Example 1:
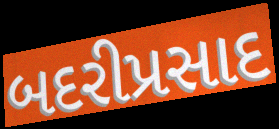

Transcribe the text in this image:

બદરીપ્રસાદ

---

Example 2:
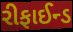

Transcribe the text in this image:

રીફાઈન્ડ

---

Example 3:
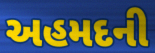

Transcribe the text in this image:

અહમદની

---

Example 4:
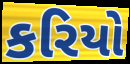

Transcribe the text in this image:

કરિયો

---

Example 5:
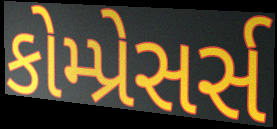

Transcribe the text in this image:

કોમ્પ્રેસર્સ